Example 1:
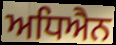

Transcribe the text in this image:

ਅਧਿਐਨ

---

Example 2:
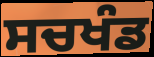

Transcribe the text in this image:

ਸਚਖੰਡ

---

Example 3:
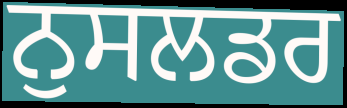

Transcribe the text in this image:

ਨੁਸਲਡਰ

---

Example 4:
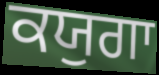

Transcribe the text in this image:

ਕਯੁਗਾ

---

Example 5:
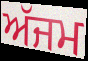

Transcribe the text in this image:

ਅੱਜਮ